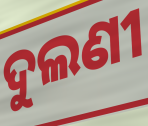
ଦୁଲଣୀ